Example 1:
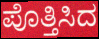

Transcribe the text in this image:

ಪೊತ್ತಿಸಿದ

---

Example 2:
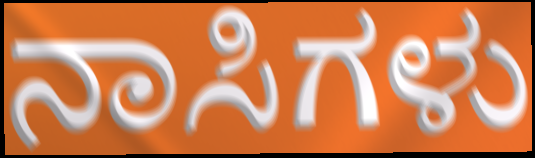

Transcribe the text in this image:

ನಾಸಿಗಳು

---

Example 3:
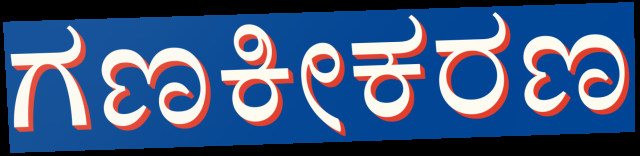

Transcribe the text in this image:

ಗಣಕೀಕರಣ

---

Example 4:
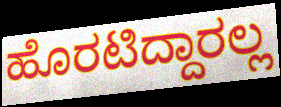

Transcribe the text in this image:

ಹೊರಟಿದ್ದಾರಲ್ಲ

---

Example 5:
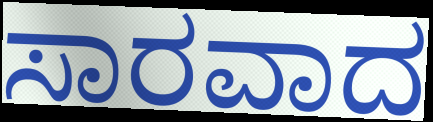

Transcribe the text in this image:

ಸಾರವಾದ